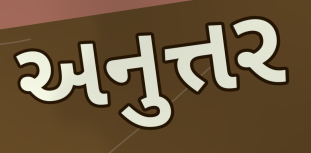
અનુત્તર